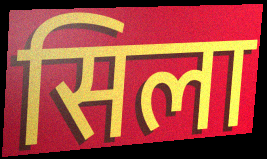
सिला